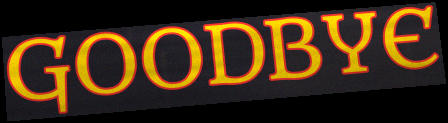
GOODBYE